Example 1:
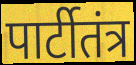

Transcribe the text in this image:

पार्टीतंत्र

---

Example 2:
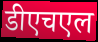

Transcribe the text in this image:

डीएचएल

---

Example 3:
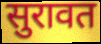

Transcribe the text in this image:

सुरावत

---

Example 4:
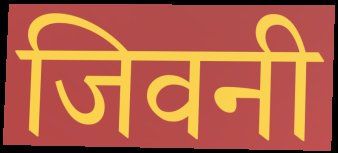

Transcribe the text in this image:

जिवनी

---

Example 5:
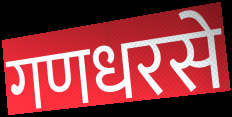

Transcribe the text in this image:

गणधरसे